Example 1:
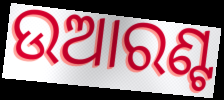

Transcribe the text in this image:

ଉଆରଣ୍ଟ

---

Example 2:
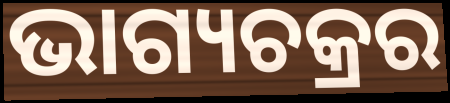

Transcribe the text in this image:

ଭାଗ୍ୟଚକ୍ରର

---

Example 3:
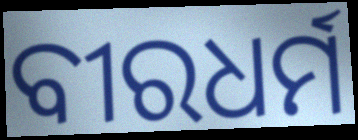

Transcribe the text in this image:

ବୀରଧର୍ମ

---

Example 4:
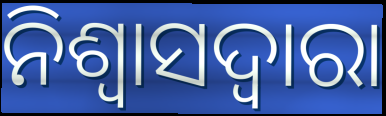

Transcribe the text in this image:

ନିଶ୍ୱାସଦ୍ୱାରା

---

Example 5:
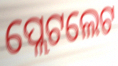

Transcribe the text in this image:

ପ୍ଲେଟଲେଟ